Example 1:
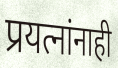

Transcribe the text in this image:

प्रयत्नांनाही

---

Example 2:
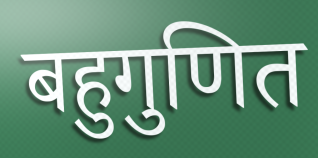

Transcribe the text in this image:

बहुगुणित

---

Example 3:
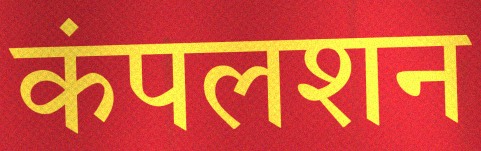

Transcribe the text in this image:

कंपलशन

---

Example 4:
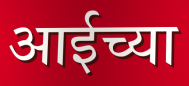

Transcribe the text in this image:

आईच्या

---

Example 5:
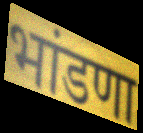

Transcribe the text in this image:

भांडणा